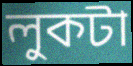
লুকটা